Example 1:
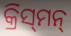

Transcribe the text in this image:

କ୍ରିସ୍‍ମନ୍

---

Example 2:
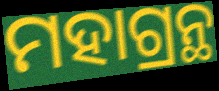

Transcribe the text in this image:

ମହାଗ୍ରନ୍ଥ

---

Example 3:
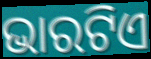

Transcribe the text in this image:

ଭାରଟିଏ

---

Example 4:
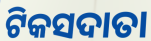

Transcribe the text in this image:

ଟିକସଦାତା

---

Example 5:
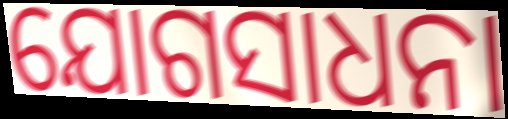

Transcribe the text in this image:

ଯୋଗସାଧନା